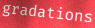
gradations